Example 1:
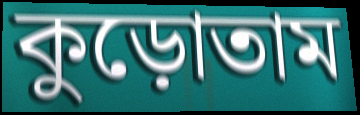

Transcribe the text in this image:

কুড়োতাম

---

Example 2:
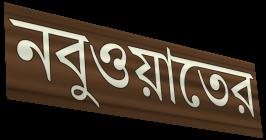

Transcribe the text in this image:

নবুওয়াতের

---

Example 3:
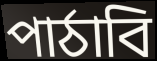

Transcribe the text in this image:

পাঠাবি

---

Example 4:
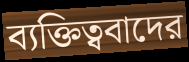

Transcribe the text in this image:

ব্যক্তিত্ববাদের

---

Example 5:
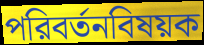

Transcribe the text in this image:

পরিবর্তনবিষয়ক